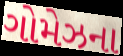
ગોમેઝના